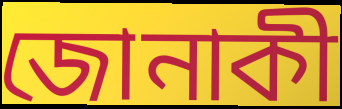
জোনাকী